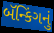
બૅન્કિંગનું